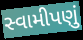
સ્વામીપણું